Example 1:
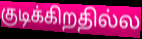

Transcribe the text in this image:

குடிக்கிறதில்ல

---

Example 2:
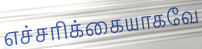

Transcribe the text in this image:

எச்சரிக்கையாகவே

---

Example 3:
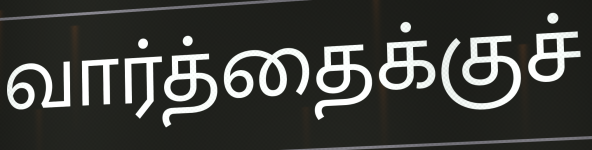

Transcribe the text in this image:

வார்த்தைக்குச்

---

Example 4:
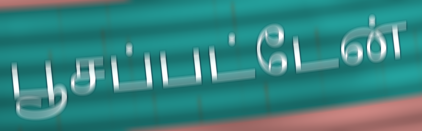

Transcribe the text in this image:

பூசப்பட்டேன்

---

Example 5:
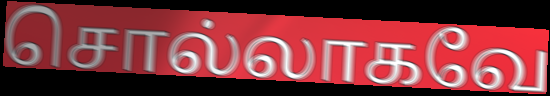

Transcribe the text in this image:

சொல்லாகவே